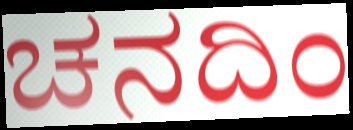
ಚನದಿಂ